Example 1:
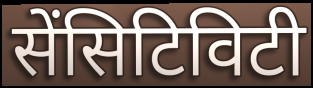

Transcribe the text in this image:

सेंसिटिविटी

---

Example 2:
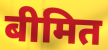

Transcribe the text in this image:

बीमित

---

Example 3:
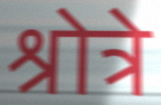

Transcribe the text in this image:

श्रोत्रे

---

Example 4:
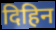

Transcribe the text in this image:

दिहिन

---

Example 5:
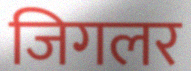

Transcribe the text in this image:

जिगलर